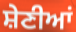
ਸ਼ੇਣੀਆਂ